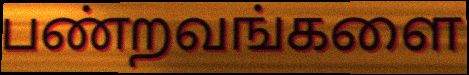
பண்றவங்களை